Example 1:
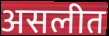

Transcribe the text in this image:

असलीत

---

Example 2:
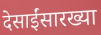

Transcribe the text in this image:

देसाईंसारख्या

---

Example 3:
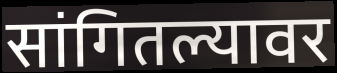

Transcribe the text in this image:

सांगितल्यावर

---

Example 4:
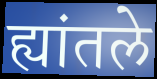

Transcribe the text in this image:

ह्यांतले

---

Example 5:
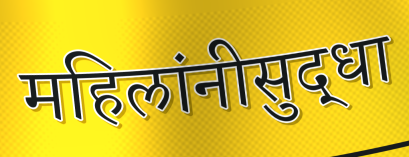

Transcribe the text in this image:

महिलांनीसुद्धा